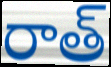
రాత్